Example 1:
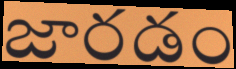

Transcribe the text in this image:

జారడం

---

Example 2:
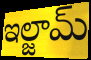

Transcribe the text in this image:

ఇల్జామ్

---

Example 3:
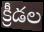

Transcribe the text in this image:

క్రీడల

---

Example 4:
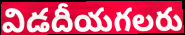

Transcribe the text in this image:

విడదీయగలరు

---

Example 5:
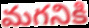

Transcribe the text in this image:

మగనికి